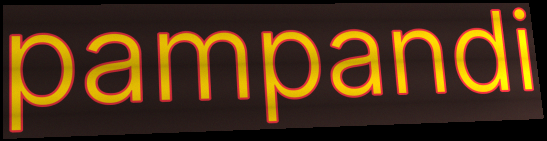
pampandi